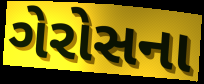
ગેરોસના